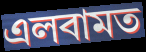
এলবামত